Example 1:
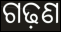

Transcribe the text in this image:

ଗଢ଼ଣ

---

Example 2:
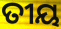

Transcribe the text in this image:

ତୀୟ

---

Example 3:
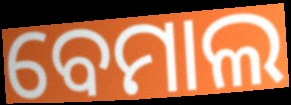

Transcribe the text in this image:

ବେମାଲ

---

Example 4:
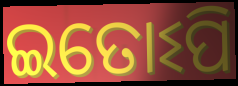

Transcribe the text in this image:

ଇତୋଽପି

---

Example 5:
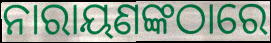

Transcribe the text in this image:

ନାରାୟଣଙ୍କଠାରେ